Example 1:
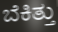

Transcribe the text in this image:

ಬೆಕಿತ್ತು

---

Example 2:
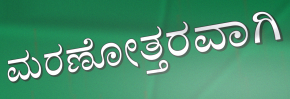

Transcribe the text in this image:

ಮರಣೋತ್ತರವಾಗಿ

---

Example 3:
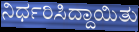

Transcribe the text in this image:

ನಿರ್ಧರಿಸಿದ್ದಾಯಿತು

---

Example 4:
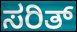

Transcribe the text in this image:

ಸರಿತ್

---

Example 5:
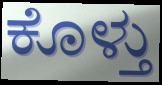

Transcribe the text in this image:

ಕೊಳ್ತು